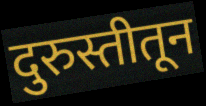
दुरुस्तीतून